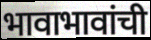
भावाभावांची